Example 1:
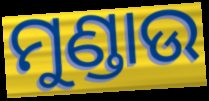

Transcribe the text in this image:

ମୁଣ୍ଡାଉ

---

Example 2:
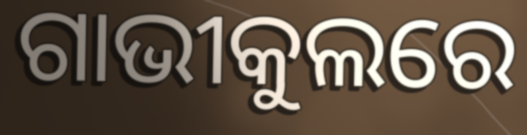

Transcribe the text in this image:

ଗାଭୀକୁଲରେ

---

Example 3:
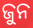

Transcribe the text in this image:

ଜୁନ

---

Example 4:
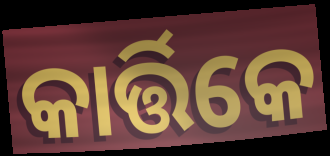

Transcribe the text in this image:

କାର୍ତ୍ତିକେ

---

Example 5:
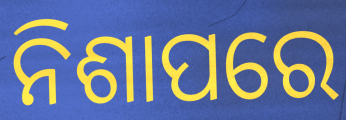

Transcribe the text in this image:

ନିଶାପରେ